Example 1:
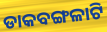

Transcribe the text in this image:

ଡାକବଙ୍ଗଳାଟି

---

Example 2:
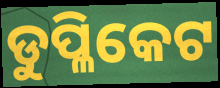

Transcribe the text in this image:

ଡୁପ୍ଳିକେଟ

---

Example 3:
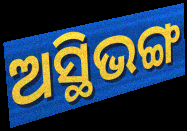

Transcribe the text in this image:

ଅସ୍ଥିଭଙ୍ଗ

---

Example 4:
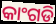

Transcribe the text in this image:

କାଂଗଡି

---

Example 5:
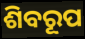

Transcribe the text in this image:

ଶିବରୂପ